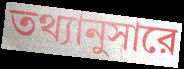
তথ্যানুসারে